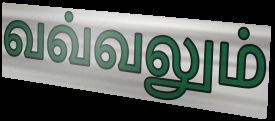
வவ்வலும்